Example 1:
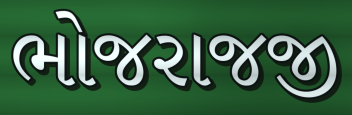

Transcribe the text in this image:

ભોજરાજજી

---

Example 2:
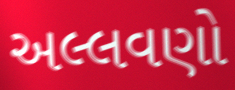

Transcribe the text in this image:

અલ્લવણો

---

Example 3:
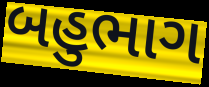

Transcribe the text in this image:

બહુભાગ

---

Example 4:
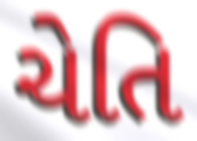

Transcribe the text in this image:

ચેતિ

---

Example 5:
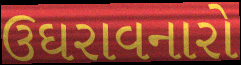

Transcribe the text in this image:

ઉઘરાવનારો